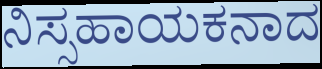
ನಿಸ್ಸಹಾಯಕನಾದ